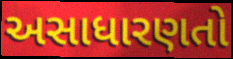
અસાધારણતો